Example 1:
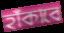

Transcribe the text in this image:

হাঁকাবে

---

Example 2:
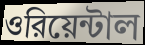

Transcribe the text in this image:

ওরিয়েন্টাল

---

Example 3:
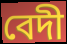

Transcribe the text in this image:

বেদী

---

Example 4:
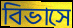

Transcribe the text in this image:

বিভাসে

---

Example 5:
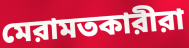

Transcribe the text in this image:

মেরামতকারীরা